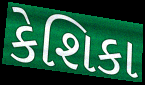
કેશિકા